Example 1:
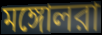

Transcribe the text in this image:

মঙ্গোলরা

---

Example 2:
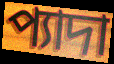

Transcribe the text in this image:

প্যাদা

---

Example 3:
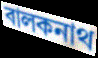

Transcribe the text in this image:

বালকনাথ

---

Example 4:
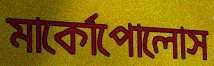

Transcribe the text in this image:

মার্কোপোলোস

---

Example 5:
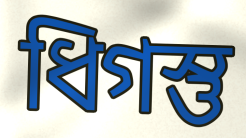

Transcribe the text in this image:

ধিগস্তু